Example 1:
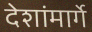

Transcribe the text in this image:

देशांमार्गे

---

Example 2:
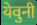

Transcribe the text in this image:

येवुनी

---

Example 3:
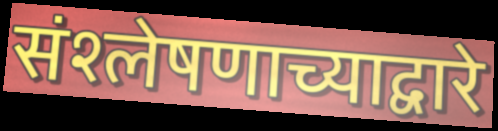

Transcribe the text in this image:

संश्लेषणाच्याद्वारे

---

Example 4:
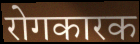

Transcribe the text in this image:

रोगकारक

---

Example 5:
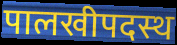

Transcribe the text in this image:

पालखीपदस्थ